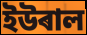
ইউৰাল